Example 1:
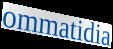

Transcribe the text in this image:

ommatidia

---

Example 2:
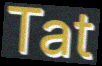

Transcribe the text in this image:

Tat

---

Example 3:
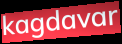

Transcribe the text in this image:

kagdavar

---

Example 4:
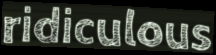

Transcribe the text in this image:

ridiculous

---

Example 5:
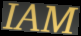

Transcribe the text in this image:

IAM